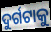
ଦୁର୍ଗଟାକୁ